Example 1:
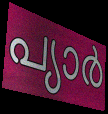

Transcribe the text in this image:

പ്യാർ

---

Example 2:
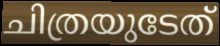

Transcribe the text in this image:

ചിത്രയുടേത്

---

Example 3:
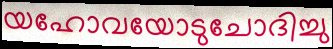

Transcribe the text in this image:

യഹോവയോടുചോദിച്ചു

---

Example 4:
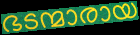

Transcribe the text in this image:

ഭടന്മാരായ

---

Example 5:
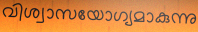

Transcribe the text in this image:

വിശ്വാസയോഗ്യമാകുന്നു